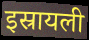
इस्रायली